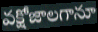
వక్షోజాలగానూ